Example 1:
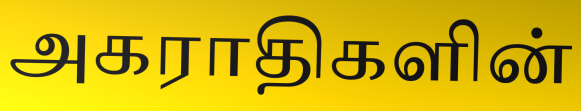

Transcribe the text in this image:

அகராதிகளின்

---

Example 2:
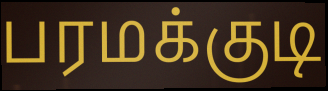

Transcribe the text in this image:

பரமக்குடி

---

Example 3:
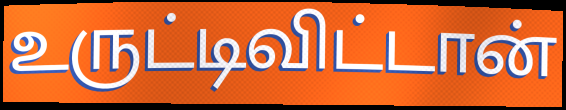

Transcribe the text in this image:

உருட்டிவிட்டான்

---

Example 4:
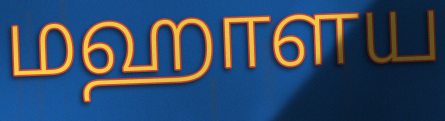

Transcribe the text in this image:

மஹாளய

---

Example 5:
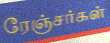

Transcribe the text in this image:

ரேஞ்சர்கள்